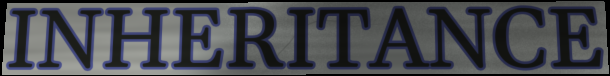
INHERITANCE